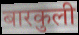
बारकुली